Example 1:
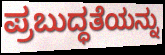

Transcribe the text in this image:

ಪ್ರಬುದ್ಧತೆಯನ್ನು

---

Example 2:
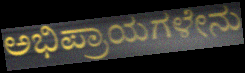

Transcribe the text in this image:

ಅಭಿಪ್ರಾಯಗಳೇನು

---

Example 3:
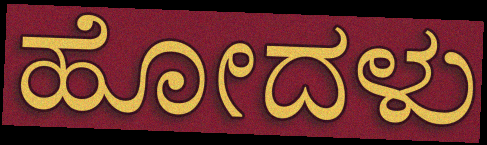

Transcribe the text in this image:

ಹೋದಳು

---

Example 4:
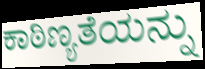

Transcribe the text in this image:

ಕಾಠಿಣ್ಯತೆಯನ್ನು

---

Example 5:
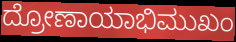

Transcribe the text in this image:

ದ್ರೋಣಾಯಾಭಿಮುಖಂ